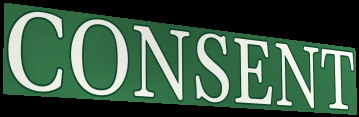
CONSENT